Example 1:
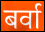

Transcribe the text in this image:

बर्वा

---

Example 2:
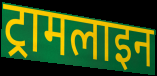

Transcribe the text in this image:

ट्रामलाइन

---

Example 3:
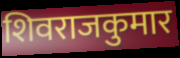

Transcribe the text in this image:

शिवराजकुमार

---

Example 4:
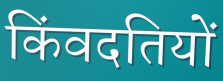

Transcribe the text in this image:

किंवदतियों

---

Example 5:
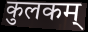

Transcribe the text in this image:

कुलकम्